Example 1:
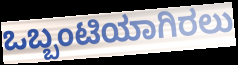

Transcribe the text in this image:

ಒಬ್ಬಂಟಿಯಾಗಿರಲು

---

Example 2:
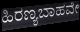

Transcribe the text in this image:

ಹಿರಣ್ಯಬಾಹವೇ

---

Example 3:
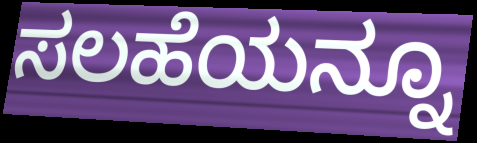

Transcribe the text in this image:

ಸಲಹೆಯನ್ನೂ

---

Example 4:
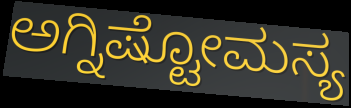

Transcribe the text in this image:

ಅಗ್ನಿಷ್ಟೋಮಸ್ಯ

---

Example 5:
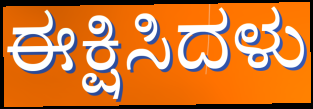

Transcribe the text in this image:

ಈಕ್ಷಿಸಿದಳು